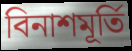
বিনাশমূর্তি